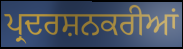
ਪ੍ਰਦਰਸ਼ਨਕਰੀਆਂ